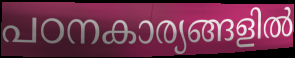
പഠനകാര്യങ്ങളിൽ